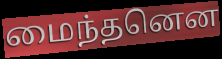
மைந்தனென